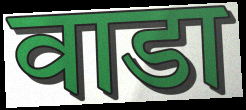
वाडा